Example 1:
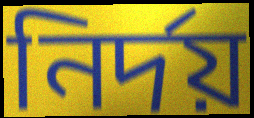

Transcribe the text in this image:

নির্দয়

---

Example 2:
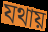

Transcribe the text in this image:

যথায়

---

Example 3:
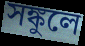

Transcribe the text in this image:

সঙ্কুলে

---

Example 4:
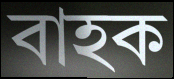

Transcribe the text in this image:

বাহক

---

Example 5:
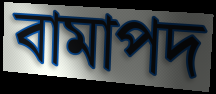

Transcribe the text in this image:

বামাপদ